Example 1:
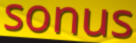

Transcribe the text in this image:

sonus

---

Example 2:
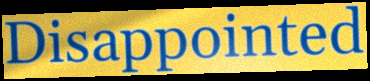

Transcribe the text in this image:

Disappointed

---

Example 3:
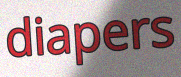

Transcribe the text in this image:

diapers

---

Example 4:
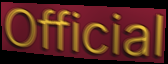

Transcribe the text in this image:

Official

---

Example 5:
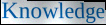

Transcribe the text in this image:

Knowledge